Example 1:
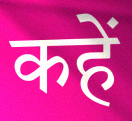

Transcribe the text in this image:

कहें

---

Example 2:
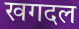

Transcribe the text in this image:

खगदल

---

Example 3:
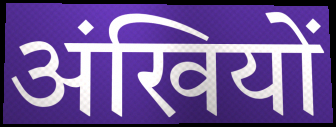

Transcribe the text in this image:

अंखियों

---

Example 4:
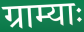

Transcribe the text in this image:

ग्राम्याः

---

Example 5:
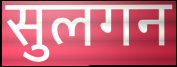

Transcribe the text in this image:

सुलगन